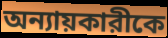
অন্যায়কারীকে